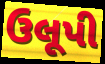
ઉલૂપી